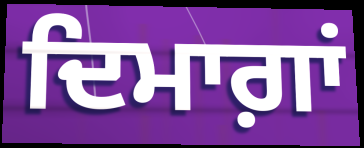
ਦਿਮਾਗ਼ਾਂ